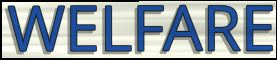
WELFARE